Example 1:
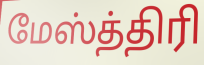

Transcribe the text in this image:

மேஸ்த்திரி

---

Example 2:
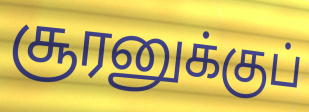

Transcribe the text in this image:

சூரனுக்குப்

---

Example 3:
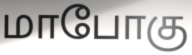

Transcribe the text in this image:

மாபோகு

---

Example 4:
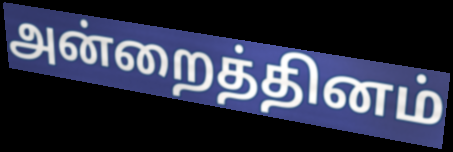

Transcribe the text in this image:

அன்றைத்தினம்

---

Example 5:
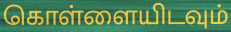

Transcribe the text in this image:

கொள்ளையிடவும்